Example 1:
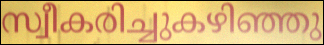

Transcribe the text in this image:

സ്വീകരിച്ചുകഴിഞ്ഞു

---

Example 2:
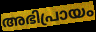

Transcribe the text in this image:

അഭിപ്രായം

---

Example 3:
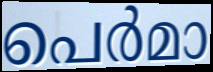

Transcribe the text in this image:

പെർമാ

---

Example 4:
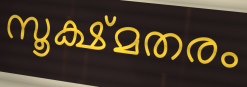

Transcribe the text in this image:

സൂക്ഷ്മതരം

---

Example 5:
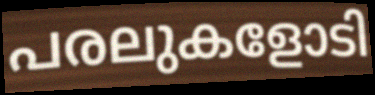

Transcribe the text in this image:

പരലുകളോടി